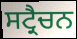
ਸਟ੍ਰੈਚਨ